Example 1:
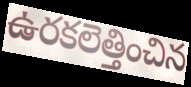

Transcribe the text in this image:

ఉరకలెత్తించిన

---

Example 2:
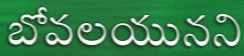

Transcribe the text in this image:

బోవలయునని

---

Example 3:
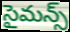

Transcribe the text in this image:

సైమన్స్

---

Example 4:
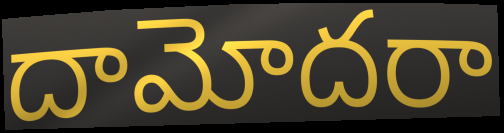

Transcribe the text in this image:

దామోదరా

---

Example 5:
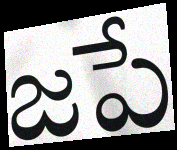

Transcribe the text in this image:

జపే